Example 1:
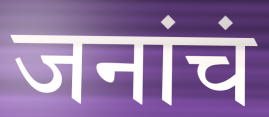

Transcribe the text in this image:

जनांचं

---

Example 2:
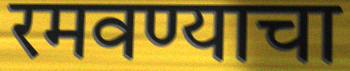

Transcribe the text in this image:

रमवण्याचा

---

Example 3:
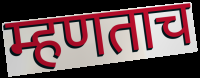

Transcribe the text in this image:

म्हणताच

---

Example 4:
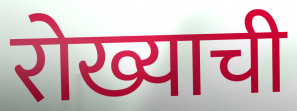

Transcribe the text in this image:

रोख्याची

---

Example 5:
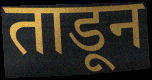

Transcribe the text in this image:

ताडून